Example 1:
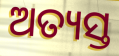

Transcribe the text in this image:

ଅତ୍ୟସ୍ତ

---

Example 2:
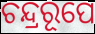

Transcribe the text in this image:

ଚନ୍ଦ୍ରରୂପେ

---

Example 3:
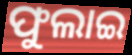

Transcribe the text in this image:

ଫୁଲାଇ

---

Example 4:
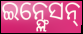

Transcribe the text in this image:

ଇନ୍ଫ୍ଲେସନ୍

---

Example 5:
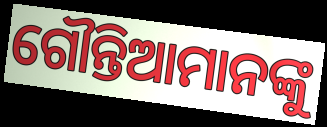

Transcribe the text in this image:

ଗୌନ୍ତିଆମାନଙ୍କୁ